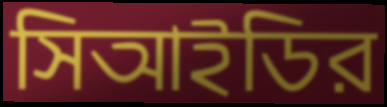
সিআইডির